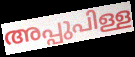
അപ്പുപിള്ള